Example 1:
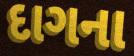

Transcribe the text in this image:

દાગના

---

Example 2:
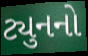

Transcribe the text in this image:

ટ્યુનનો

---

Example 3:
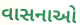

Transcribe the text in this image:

વાસનાઓ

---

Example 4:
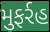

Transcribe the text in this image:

મુફર્રહ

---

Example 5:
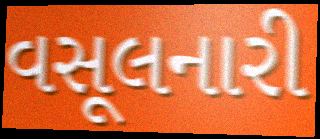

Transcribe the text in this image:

વસૂલનારી